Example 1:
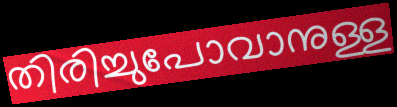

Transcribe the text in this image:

തിരിച്ചുപോവാനുള്ള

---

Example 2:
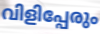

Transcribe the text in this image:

വിളിപ്പേരും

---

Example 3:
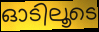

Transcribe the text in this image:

ഓടിലൂടെ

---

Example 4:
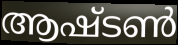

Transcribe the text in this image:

ആഷ്ടൺ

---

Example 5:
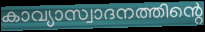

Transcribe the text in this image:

കാവ്യാസ്വാദനത്തിന്റെ